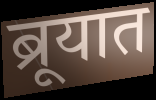
ब्रूयात